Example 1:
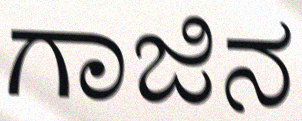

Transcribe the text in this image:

ಗಾಜಿನ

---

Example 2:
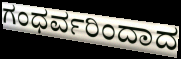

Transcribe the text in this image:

ಗಂಧರ್ವರಿಂದಾದ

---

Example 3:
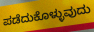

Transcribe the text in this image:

ಪಡೆದುಕೊಳ್ಳುವುದು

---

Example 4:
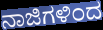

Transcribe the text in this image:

ನಾಜಿಗಳಿಂದ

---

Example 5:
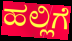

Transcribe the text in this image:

ಹಲ್ಲಿಗೆ